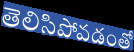
తెలిసిపోవడంతో